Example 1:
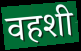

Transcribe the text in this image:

वहशी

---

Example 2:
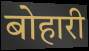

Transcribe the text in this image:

बोहारी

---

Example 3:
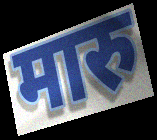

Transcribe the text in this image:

मारु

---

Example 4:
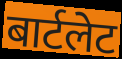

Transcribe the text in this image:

बार्टलेट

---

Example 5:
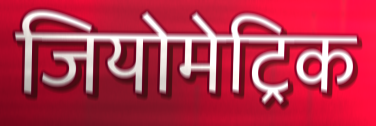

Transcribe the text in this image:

जियोमेट्रिक